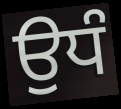
ਉਧੰ